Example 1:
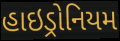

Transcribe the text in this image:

હાઇડ્રોનિયમ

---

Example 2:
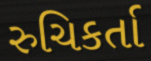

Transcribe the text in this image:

રુચિકર્તા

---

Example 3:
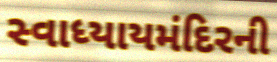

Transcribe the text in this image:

સ્વાધ્યાયમંદિરની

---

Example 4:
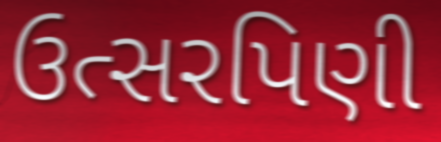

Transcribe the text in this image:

ઉત્સરપિણી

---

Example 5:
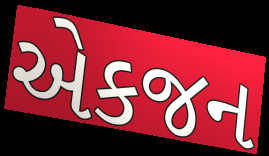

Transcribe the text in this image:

એકજન